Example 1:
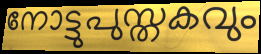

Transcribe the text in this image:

നോട്ടുപുസ്തകവും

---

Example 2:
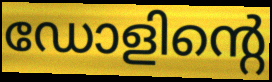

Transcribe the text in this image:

ഡോളിന്റെ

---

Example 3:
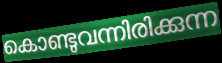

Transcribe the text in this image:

കൊണ്ടുവന്നിരിക്കുന്ന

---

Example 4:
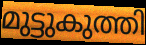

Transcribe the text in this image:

മുട്ടുകുത്തി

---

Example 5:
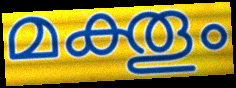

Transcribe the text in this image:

മക്തൂം